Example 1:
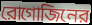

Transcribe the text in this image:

রোগোজিনের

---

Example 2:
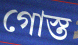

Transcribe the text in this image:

গোস্ত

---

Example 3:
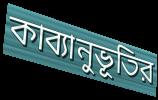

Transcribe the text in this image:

কাব্যানুভূতির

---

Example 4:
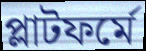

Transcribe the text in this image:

প্লাটফর্মে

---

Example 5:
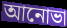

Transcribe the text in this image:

আনোভা